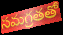
సమగ్రతతో